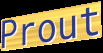
Prout